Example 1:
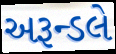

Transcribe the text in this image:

અરૂન્ડલે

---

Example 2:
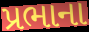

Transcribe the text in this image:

પ્રભાના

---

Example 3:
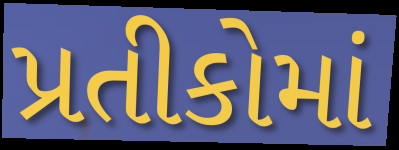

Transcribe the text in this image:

પ્રતીકોમાં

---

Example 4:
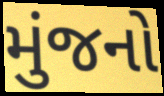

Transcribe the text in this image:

મુંજનો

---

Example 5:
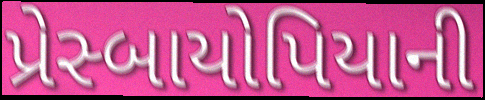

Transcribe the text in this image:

પ્રેસ્બાયોપિયાની